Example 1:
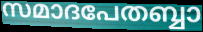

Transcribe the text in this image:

സമാദപേതബ്ബാ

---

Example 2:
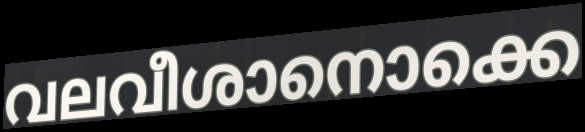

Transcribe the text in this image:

വലവീശാനൊക്കെ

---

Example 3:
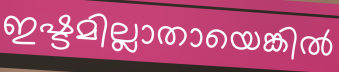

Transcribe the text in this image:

ഇഷ്ടമില്ലാതായെങ്കിൽ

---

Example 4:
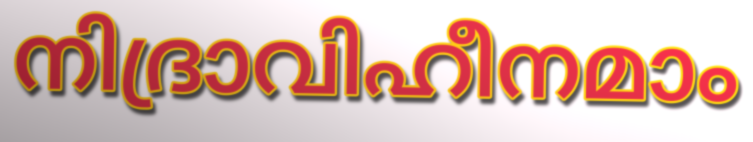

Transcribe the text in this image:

നിദ്രാവിഹീനമാം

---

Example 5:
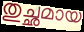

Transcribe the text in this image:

തുച്ഛമായ